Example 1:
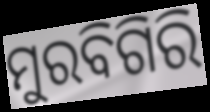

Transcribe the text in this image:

ମୁରବିଗିରି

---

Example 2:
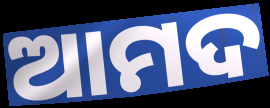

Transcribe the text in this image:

ଆମଦ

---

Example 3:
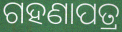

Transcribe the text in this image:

ଗହଣାପତ୍ର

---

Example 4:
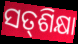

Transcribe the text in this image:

ସତ୍‌ଶିକ୍ଷା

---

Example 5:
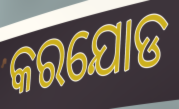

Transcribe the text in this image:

କରଯୋଡ